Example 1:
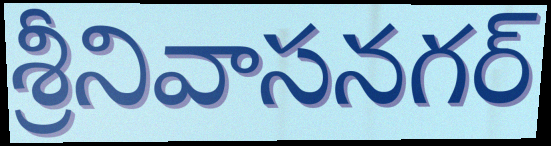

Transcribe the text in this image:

శ్రీనివాసనగర్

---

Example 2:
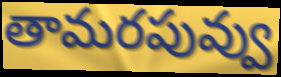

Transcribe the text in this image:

తామరపువ్వు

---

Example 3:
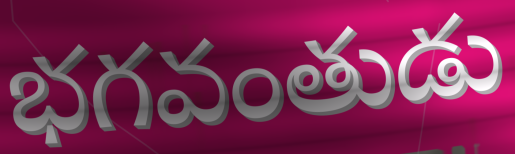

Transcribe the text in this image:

భగవంతుడు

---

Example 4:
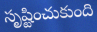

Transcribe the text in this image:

సృష్టించుకుంది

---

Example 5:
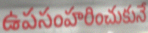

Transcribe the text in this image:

ఉపసంహరించుకునే